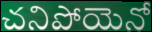
చనిపోయెనో